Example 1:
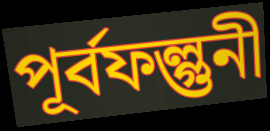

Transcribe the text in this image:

পূর্বফল্গুনী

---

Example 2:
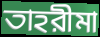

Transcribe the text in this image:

তাহরীমা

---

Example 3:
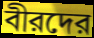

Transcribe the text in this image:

বীরদের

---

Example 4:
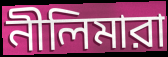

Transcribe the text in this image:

নীলিমারা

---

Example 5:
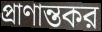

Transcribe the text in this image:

প্রাণান্তকর